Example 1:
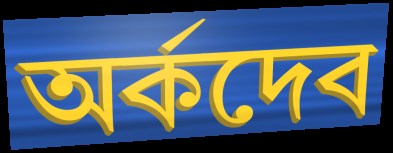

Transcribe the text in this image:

অর্কদেব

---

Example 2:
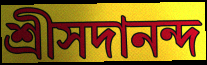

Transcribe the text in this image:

শ্রীসদানন্দ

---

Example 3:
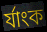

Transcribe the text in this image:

র্যাংক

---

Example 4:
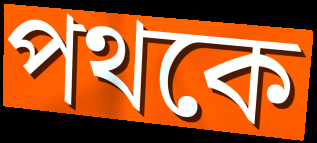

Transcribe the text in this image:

পথকে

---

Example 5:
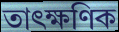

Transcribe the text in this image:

তাৎক্ষণিক